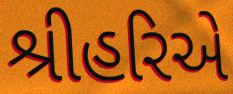
શ્રીહરિએ